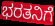
ಭರತನಿಗೆ